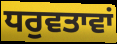
ਧਰੁਵਤਾਵਾਂ